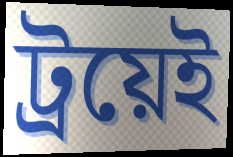
ট্রয়েই